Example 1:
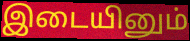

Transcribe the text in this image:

இடையினும்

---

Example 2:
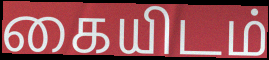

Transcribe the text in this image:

கையிடம்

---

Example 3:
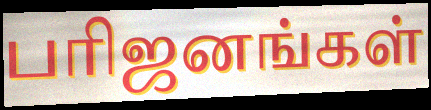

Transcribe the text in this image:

பரிஜனங்கள்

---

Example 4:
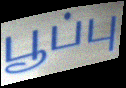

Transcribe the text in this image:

பூப்பு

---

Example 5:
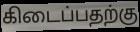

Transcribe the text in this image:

கிடைப்பதற்கு